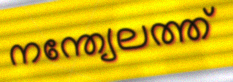
നന്ത്യേലത്ത്